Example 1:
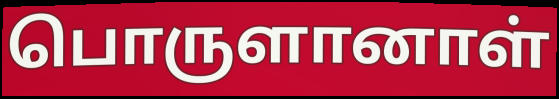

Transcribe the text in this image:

பொருளானாள்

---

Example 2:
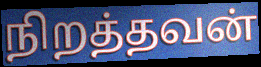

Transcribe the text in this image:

நிறத்தவன்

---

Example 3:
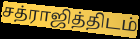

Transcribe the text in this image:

சத்ராஜித்திடம்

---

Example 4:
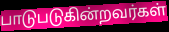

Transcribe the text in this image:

பாடுபடுகின்றவர்கள்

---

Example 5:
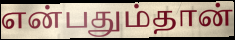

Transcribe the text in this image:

என்பதும்தான்